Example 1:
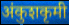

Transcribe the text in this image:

अंकुशकृमी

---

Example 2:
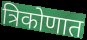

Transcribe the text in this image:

त्रिकोणात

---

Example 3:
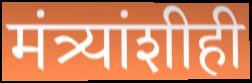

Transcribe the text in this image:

मंत्र्यांशीही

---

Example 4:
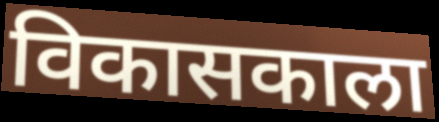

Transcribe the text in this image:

विकासकाला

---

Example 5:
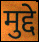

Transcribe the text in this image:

मुद्दे